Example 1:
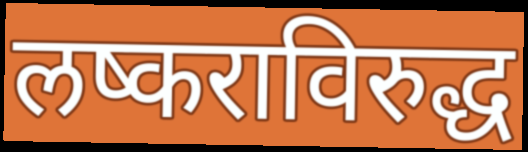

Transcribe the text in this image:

लष्कराविरुद्ध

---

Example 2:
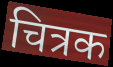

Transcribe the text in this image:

चित्रक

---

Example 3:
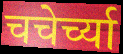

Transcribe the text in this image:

चचेर्च्या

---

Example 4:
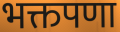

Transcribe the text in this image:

भक्तपणा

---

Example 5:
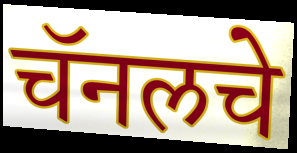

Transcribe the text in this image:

चॅनलचे